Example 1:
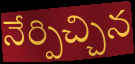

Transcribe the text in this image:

నేర్పిచ్చిన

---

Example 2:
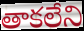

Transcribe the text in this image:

తాకలేని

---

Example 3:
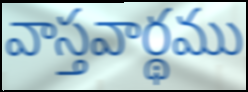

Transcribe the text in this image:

వాస్తవార్థము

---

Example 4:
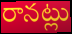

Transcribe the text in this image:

రానట్లు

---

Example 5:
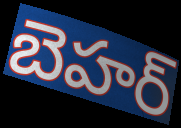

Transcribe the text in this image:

బెహర్